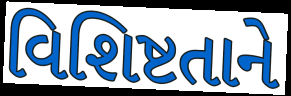
વિશિષ્ટતાને